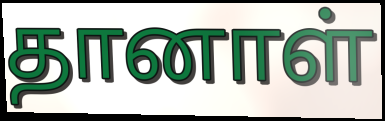
தானாள்